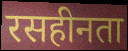
रसहीनता